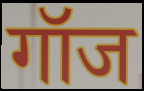
गॉज